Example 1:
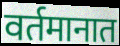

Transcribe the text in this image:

वर्तमानात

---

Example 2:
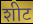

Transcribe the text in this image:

शीट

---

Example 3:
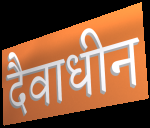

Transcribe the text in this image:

दैवाधीन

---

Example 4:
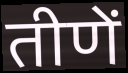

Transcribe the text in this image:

तीणें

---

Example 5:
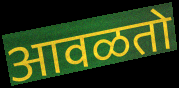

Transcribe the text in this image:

आवळतो